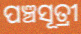
ପଞ୍ଚସୂତ୍ରୀ